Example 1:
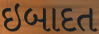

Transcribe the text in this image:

ઇબાદત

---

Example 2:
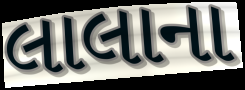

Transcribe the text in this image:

લાલાના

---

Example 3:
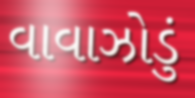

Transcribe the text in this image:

વાવાઝોડું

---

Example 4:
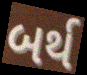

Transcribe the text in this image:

બર્થ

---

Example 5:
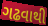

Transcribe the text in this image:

ગઢવાથી